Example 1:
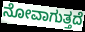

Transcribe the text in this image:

ನೋವಾಗುತ್ತದೆ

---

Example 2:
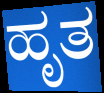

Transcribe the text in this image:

ಹೃತ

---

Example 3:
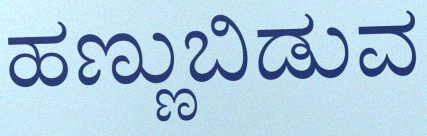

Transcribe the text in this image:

ಹಣ್ಣುಬಿಡುವ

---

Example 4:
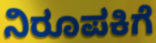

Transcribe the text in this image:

ನಿರೂಪಕಿಗೆ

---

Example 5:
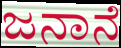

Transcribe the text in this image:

ಜನಾನೆ